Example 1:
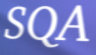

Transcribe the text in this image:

SQA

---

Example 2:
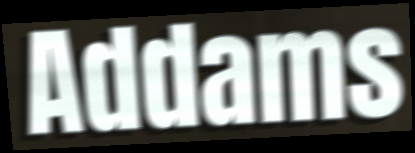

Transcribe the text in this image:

Addams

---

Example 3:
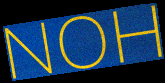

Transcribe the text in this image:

NOH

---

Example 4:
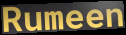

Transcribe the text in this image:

Rumeen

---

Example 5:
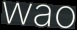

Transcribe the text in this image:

wao